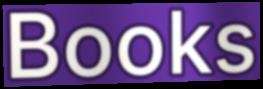
Books